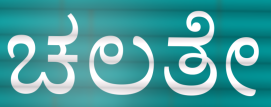
ಚಲತೇ